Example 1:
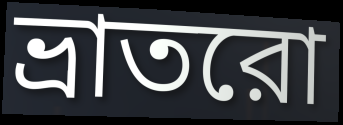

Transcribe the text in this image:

ভ্রাতরো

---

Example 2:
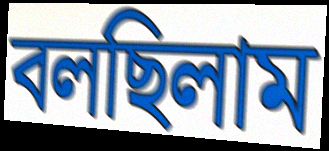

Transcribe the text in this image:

বলছিলাম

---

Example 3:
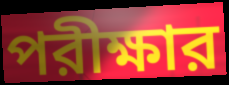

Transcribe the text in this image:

পরীক্ষার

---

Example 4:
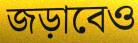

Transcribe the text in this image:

জড়াবেও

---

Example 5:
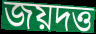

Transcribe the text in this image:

জয়দত্ত